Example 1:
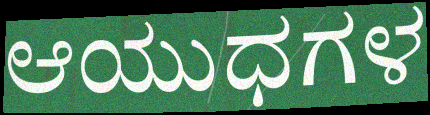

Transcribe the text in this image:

ಆಯುಧಗಳ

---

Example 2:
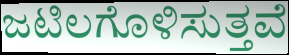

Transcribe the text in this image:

ಜಟಿಲಗೊಳಿಸುತ್ತವೆ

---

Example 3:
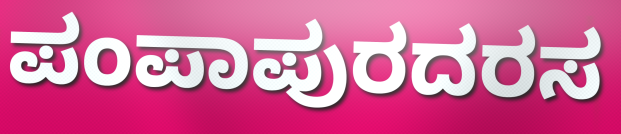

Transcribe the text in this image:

ಪಂಪಾಪುರದರಸ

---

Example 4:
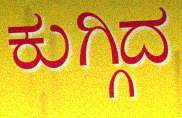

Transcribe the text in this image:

ಕುಗ್ಗಿದ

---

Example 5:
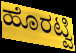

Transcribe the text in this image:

ಹೊರಟ್ವಿ